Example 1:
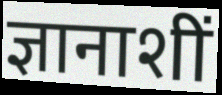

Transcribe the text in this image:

ज्ञानाशीं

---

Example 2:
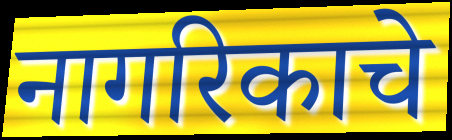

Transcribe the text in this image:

नागरिकाचे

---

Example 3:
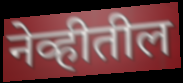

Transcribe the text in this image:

नेव्हीतील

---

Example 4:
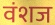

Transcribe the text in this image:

वंशज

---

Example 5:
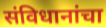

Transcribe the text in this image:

संविधानांचा